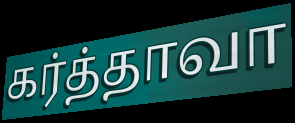
கர்த்தாவா